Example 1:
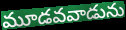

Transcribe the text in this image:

మూడవవాడును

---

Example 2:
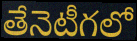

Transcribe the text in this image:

తేనెటీగలో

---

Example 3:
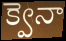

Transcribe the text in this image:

క్వెనా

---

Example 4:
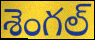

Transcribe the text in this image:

శెంగల్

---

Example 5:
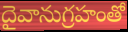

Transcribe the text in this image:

దైవానుగ్రహంతో